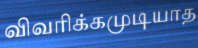
விவரிக்கமுடியாத